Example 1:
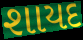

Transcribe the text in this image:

શાયદ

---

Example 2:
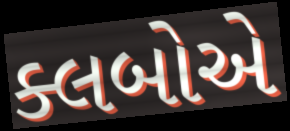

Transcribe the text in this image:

ક્લબોએ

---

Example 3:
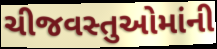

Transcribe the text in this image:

ચીજવસ્તુઓમાંની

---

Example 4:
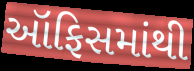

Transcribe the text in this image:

ઑફિસમાંથી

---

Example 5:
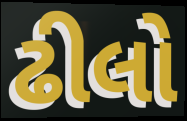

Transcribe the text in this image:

ઢીલો